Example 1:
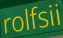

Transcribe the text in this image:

rolfsii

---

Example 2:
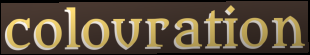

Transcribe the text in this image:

colouration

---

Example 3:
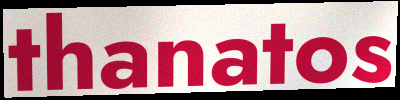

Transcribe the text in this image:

thanatos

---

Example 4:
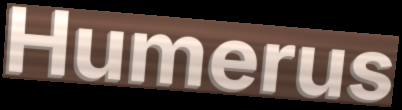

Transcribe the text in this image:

Humerus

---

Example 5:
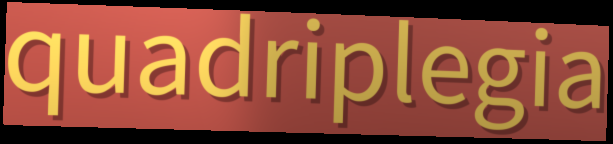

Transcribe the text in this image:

quadriplegia